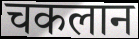
चकलान